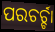
ପରଚର୍ଚ୍ଚା